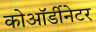
कोऑर्डीनेटर